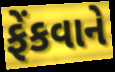
ફેંકવાને